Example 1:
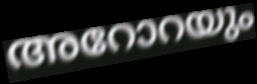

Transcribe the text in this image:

അറോറയും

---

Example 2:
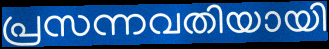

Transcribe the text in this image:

പ്രസന്നവതിയായി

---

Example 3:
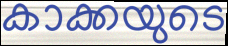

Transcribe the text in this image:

കാക്കയുടെ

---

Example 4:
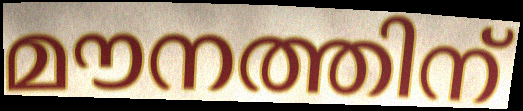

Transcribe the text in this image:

മൗനത്തിന്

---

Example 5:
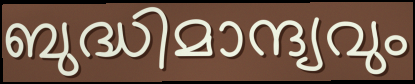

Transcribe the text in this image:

ബുദ്ധിമാന്ദ്യവും